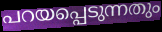
പറയപ്പെടുന്നതും